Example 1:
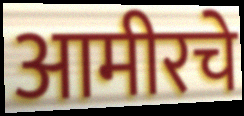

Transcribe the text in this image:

आमीरचे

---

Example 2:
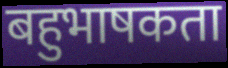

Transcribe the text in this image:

बहुभाषकता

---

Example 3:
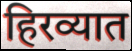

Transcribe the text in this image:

हिरव्यात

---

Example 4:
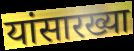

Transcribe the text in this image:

यांसारख्या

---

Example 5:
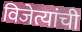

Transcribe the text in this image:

विजेत्यांची